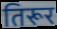
तिरूर